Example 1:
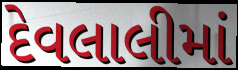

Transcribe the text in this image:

દેવલાલીમાં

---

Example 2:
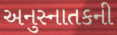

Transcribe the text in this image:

અનુસ્નાતકની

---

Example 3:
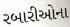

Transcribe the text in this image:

રબારીઓના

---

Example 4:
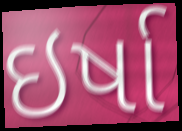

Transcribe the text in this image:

ઇર્ષા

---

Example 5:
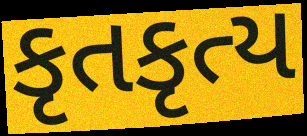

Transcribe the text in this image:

કૃતકૃત્ય